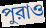
পুরাও